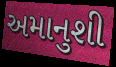
અમાનુશી